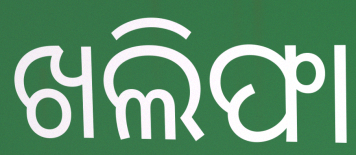
ଖଲିଫା